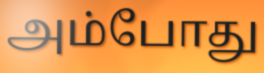
அம்போது